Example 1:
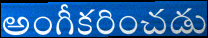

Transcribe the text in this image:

అంగీకరించడు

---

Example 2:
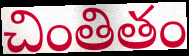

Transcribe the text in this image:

చింతితం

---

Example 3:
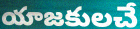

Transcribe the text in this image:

యాజకులచే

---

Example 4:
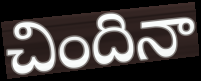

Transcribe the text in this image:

చిందినా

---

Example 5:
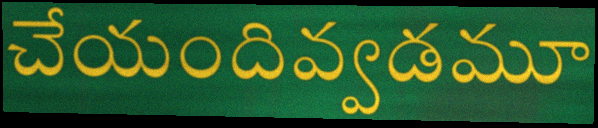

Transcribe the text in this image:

చేయందివ్వడమూ